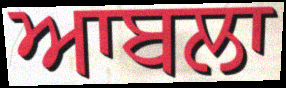
ਆਬਲਾ